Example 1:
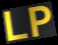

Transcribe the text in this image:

LP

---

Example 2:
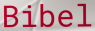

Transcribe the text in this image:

Bibel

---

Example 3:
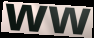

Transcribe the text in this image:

ww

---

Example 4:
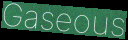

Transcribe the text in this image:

Gaseous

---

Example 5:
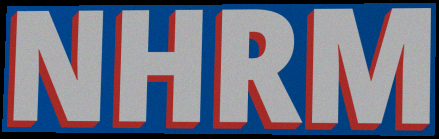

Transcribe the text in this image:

NHRM